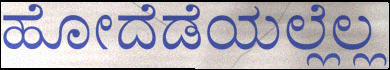
ಹೋದೆಡೆಯಲ್ಲೆಲ್ಲ